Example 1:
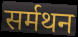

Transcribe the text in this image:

सर्मथन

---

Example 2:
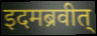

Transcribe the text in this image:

इदमब्रवीत्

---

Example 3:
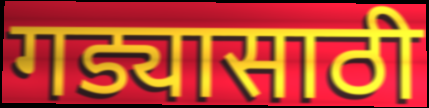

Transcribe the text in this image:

गड्यासाठी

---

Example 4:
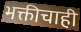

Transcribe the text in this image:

भक्तीचाही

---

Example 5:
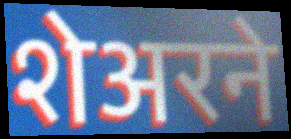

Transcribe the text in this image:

शेअरने